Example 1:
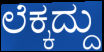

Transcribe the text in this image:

ಲೆಕ್ಕದ್ದು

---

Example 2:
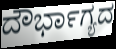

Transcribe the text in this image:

ದೌರ್ಭಾಗ್ಯದ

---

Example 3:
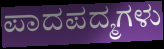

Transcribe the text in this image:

ಪಾದಪದ್ಮಗಳು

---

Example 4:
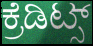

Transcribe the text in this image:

ಕ್ರೆಡಿಟ್ಸ್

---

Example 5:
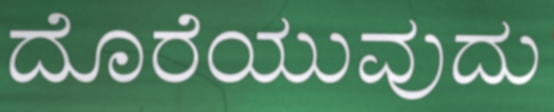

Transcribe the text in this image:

ದೊರೆಯುವುದು